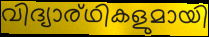
വിദ്യാര്ഥികളുമായി